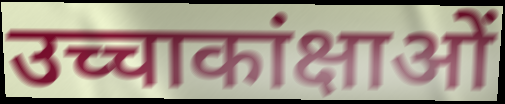
उच्चाकांक्षाओं